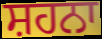
ਸ਼ਹਨਾ